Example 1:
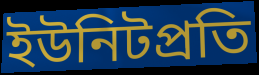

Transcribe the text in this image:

ইউনিটপ্রতি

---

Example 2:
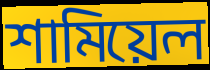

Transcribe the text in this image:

শামিয়েল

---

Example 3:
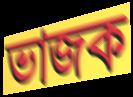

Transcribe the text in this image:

ভাজক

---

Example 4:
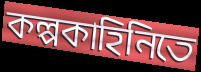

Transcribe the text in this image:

কল্পকাহিনিতে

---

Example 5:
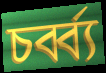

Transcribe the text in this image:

চর্ব্ব্য